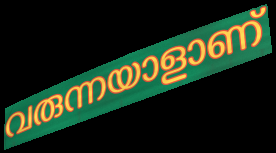
വരുന്നയാളാണ്